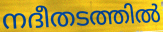
നദീതടത്തിൽ